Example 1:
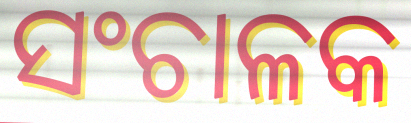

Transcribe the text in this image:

ସଂଚାଳକ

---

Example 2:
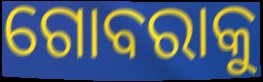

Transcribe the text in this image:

ଗୋବରାକୁ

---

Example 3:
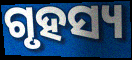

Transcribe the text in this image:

ଗୃହସ୍ୟ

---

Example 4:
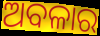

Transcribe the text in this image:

ଅବଳାର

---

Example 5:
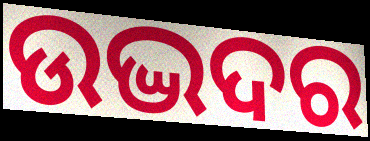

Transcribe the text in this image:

ଉଦ୍ଭଦର